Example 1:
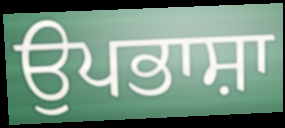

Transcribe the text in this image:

ਉਪਭਾਸ਼ਾ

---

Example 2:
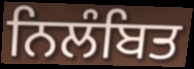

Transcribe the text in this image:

ਨਿਲੰਬਿਤ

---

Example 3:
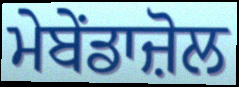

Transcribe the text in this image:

ਮੇਬੇਂਡਾਜ਼ੋਲ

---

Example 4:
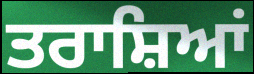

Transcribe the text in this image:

ਤਰਾਸ਼ਿਆਂ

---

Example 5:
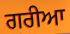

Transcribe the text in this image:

ਗਰੀਆ